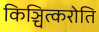
किञ्चित्करोति